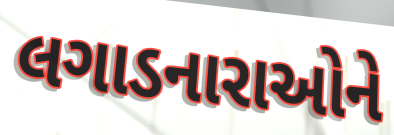
લગાડનારાઓને